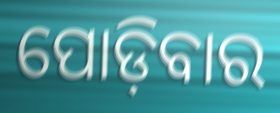
ପୋଡ଼ିବାର